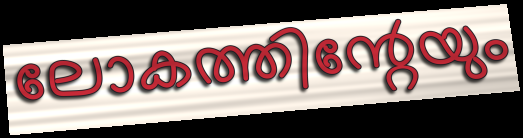
ലോകത്തിന്റേയും